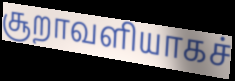
சூறாவளியாகச்